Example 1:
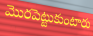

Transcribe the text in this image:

మొరపెట్టుకుంటారు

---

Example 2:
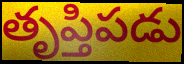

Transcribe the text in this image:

తృప్తిపడు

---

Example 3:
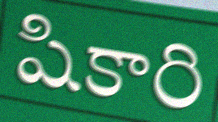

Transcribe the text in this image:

షికారి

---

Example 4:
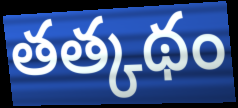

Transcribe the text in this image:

తత్కథం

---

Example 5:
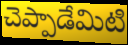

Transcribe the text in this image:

చెప్పాడేమిటి